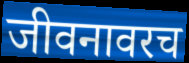
जीवनावरच